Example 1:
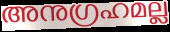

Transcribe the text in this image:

അനുഗ്രഹമല്ല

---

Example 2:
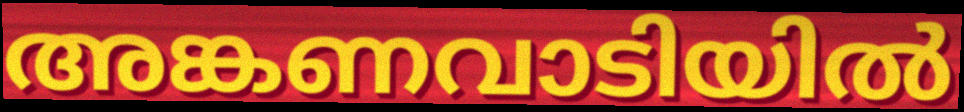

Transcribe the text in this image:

അങ്കണവാടിയിൽ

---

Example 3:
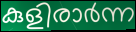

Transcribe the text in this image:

കുളിരാർന്ന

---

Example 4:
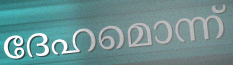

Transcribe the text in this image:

ദേഹമൊന്ന്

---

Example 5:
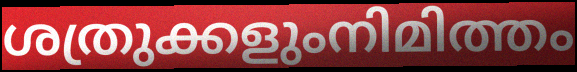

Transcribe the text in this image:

ശത്രുക്കളുംനിമിത്തം